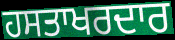
ਹਸਤਾਖਰਦਾਰ